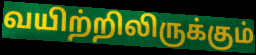
வயிற்றிலிருக்கும்